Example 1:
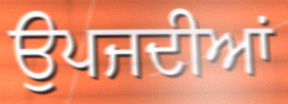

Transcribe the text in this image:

ਉਪਜਦੀਆਂ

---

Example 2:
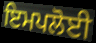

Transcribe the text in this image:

ਇਮਪਲੋਈ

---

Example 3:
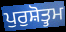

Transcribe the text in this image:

ਪੁਰੁਸ਼ੋਤ੍ਤਮ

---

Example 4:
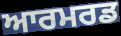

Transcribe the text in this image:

ਆਰਮਰਡ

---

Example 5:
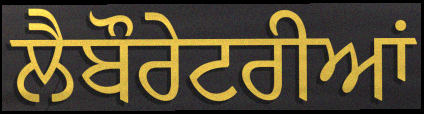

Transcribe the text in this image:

ਲੈਬੌਰੇਟਰੀਆਂ